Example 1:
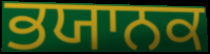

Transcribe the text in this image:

ਭਯਾਨਕ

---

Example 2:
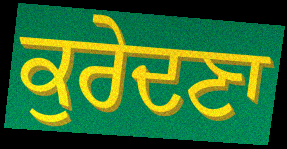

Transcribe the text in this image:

ਕੁਰੇਦਣਾ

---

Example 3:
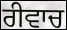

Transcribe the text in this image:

ਰੀਵਾਚ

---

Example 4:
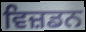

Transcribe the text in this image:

ਵਿਜ਼ਡਨ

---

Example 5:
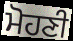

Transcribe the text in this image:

ਮੋਹਣੀ